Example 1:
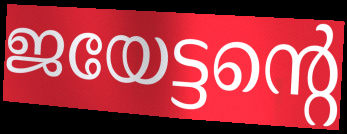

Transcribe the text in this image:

ജയേട്ടന്റെ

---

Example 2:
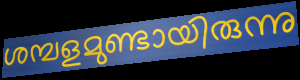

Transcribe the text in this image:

ശമ്പളമുണ്ടായിരുന്നു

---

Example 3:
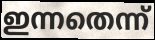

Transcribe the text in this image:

ഇന്നതെന്ന്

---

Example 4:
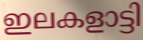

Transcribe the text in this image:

ഇലകളാട്ടി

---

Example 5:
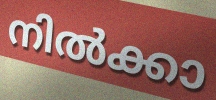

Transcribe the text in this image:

നിൽക്കാ